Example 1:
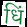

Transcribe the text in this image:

धिं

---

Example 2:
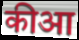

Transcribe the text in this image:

कीआ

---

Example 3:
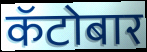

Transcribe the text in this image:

कॅटोबार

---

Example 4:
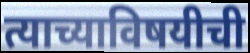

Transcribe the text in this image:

त्याच्याविषयीची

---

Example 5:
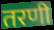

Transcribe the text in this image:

तरणी